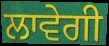
ਲਾਵੇਗੀ